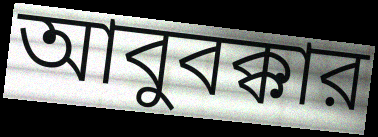
আবুবক্কার